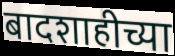
बादशाहीच्या